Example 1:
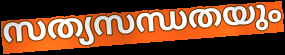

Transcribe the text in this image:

സത്യസന്ധതയും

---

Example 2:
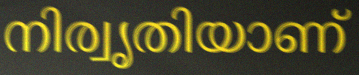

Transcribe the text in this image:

നിര്വൃതിയാണ്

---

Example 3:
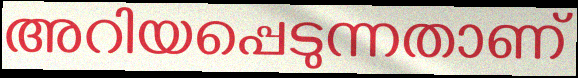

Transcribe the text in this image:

അറിയപ്പെടുന്നതാണ്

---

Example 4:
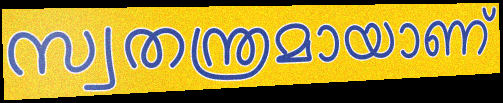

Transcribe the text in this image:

സ്വതന്ത്രമായാണ്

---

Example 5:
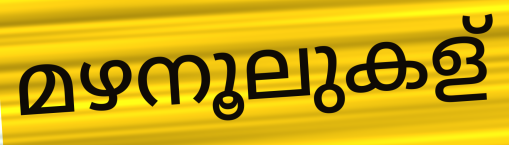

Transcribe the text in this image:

മഴനൂലുകള്